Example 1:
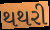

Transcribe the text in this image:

થથરી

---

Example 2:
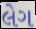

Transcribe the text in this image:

લેગ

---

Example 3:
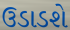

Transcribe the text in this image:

ઉડાડશે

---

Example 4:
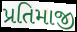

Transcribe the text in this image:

પ્રતિમાજી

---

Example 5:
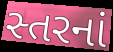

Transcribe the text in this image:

સ્તરનાં